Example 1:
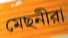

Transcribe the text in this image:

মেছনীরা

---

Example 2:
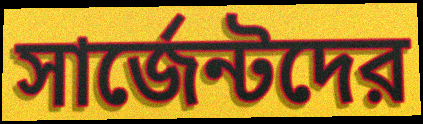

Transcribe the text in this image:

সার্জেন্টদের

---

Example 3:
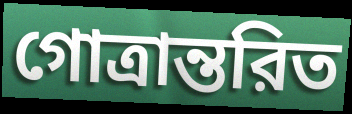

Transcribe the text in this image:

গোত্রান্তরিত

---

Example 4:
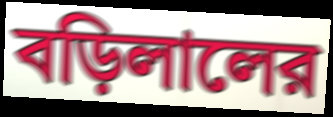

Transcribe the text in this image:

বড়িলালের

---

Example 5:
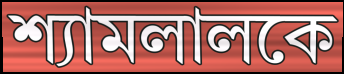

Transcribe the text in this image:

শ্যামলালকে